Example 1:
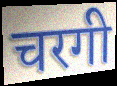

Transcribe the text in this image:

चरगी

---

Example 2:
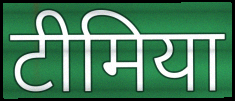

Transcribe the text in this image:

टीमिया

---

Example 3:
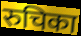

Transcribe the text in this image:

रुचिका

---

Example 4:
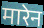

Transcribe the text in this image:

मारेन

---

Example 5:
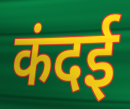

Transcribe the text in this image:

कंदई